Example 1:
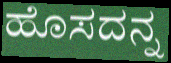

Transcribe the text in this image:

ಹೊಸದನ್ನ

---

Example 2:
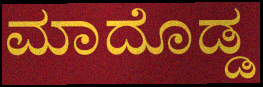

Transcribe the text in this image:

ಮಾದೊಡ್ಡ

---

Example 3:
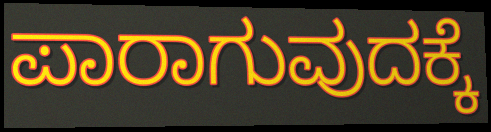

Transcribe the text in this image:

ಪಾರಾಗುವುದಕ್ಕೆ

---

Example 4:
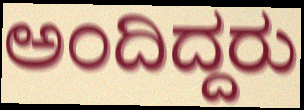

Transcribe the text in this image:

ಅಂದಿದ್ದರು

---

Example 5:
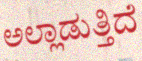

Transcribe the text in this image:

ಅಲ್ಲಾಡುತ್ತಿದೆ